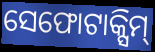
ସେଫୋଟାକ୍ସିମ୍